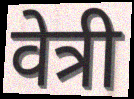
वेत्री